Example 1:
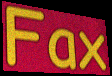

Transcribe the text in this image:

Fax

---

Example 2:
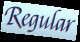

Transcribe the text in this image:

Regular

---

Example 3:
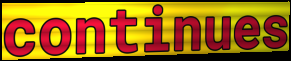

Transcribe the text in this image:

continues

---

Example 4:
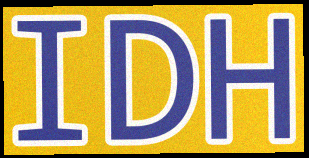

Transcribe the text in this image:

IDH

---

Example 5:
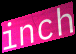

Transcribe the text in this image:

inch